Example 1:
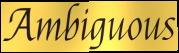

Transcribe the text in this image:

Ambiguous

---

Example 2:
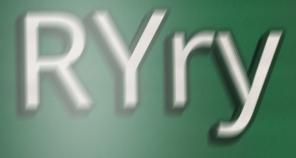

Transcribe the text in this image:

RYry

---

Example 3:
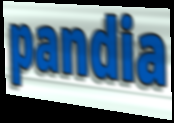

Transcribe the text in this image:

pandia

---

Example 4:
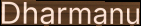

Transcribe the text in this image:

Dharmanu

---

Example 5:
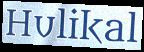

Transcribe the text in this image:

Hulikal